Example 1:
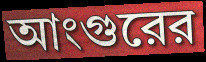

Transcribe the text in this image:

আংগুরের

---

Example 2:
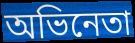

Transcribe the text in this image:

অভিনেতা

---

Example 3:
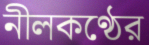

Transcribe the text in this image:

নীলকণ্ঠের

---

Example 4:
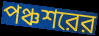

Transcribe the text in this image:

পঞ্চশরের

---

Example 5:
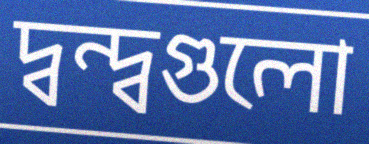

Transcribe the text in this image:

দ্বন্দ্বগুলো